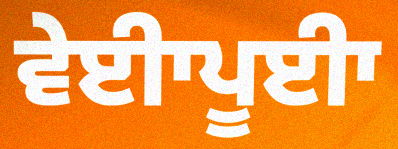
ਵੇਈਾਪੂਈਾ